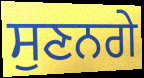
ਸੁਣਨਗੇ